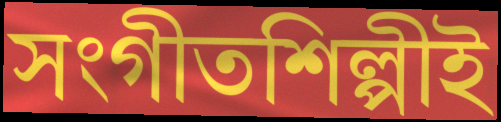
সংগীতশিল্পীই